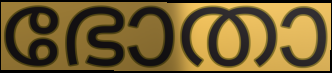
ഭോതാ